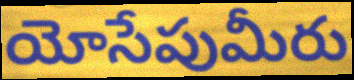
యోసేపుమీరు